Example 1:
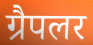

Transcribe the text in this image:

ग्रैपलर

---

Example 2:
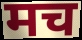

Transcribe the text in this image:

मच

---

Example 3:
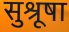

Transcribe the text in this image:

सुश्रूषा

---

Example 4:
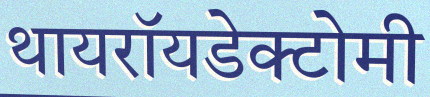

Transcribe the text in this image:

थायरॉयडेक्टोमी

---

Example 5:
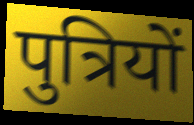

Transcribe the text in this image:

पुत्रियों